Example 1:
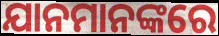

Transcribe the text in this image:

ଯାନମାନଙ୍କରେ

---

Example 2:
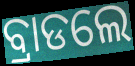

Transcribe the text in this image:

ବ୍ରାଡଲେ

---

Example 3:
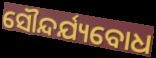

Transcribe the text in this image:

ସୌନ୍ଦର୍ଯ୍ୟବୋଧ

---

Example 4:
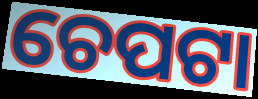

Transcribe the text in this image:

ଚେପଟା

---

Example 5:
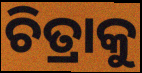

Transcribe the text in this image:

ଚିତ୍ରାକୁ